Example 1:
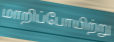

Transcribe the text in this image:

மாறிப்போயிற்று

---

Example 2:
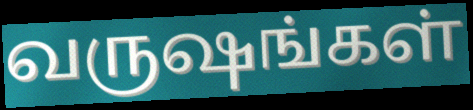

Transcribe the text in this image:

வருஷங்கள்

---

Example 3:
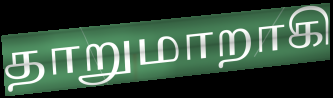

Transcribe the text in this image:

தாறுமாறாகி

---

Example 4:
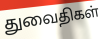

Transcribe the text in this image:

துவைதிகள்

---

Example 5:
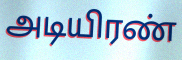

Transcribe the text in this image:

அடியிரண்